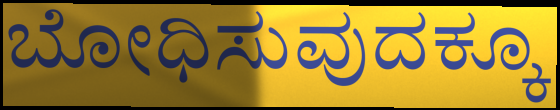
ಬೋಧಿಸುವುದಕ್ಕೂ